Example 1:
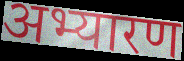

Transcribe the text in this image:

अभ्यारण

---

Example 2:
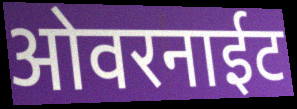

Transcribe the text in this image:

ओवरनाईट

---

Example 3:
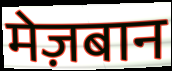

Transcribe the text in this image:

मेज़बान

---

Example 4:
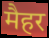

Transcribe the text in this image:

मैहर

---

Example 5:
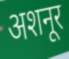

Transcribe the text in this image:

अशनूर